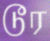
டூர